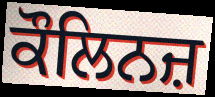
ਕੌਲਿਨਜ਼